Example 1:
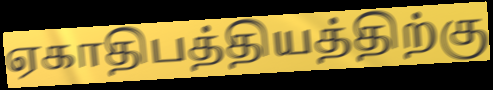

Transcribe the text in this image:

ஏகாதிபத்தியத்திற்கு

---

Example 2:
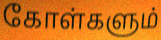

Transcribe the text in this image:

கோள்களும்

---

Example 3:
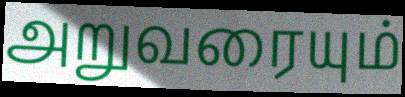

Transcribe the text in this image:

அறுவரையும்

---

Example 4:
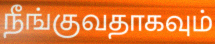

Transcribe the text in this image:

நீங்குவதாகவும்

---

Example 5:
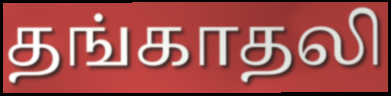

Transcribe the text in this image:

தங்காதலி